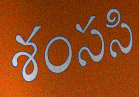
శంససి